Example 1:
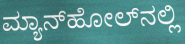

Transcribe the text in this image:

ಮ್ಯಾನ್‌ಹೋಲ್‌ನಲ್ಲಿ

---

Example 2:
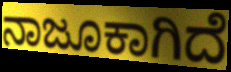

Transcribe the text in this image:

ನಾಜೂಕಾಗಿದೆ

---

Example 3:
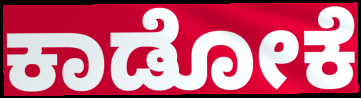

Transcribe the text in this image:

ಕಾಡೋಕೆ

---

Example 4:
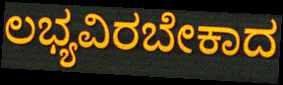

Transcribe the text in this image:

ಲಭ್ಯವಿರಬೇಕಾದ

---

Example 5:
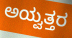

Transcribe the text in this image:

ಅಯ್ವತ್ತರ